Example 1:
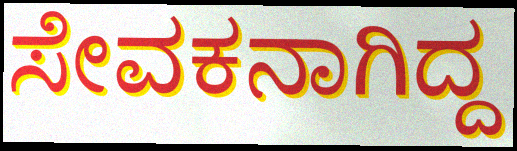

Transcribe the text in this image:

ಸೇವಕನಾಗಿದ್ದ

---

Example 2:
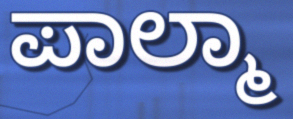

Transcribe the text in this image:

ಪಾಲ್ಮಾ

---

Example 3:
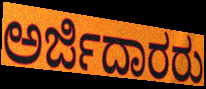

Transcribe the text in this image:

ಅರ್ಜಿದಾರರು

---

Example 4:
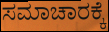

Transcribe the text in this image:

ಸಮಾಚಾರಕ್ಕೆ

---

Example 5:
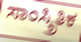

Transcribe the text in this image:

ಸಾಂಸ್ಕ್ರಿತಿಕ